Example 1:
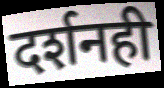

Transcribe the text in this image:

दर्शनही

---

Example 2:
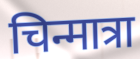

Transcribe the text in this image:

चिन्मात्रा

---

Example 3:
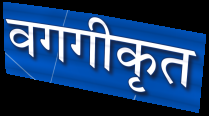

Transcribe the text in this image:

वगगीकृत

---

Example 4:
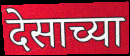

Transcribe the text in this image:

देसाच्या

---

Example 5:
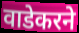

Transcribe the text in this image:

वाडेकरने